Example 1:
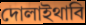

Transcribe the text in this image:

দোলাইথাবি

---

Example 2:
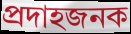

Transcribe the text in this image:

প্রদাহজনক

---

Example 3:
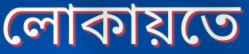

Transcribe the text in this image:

লোকায়তে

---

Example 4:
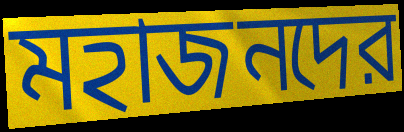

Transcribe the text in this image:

মহাজনদের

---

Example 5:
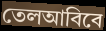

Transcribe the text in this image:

তেলআবিবে